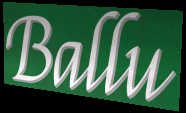
Ballu